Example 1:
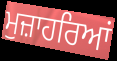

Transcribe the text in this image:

ਮੁਜ਼ਾਹਰਿਆਂ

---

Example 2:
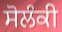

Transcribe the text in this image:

ਸੋਲੰਕੀ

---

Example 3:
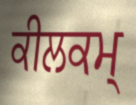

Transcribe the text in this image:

ਕੀਲਕਮ੍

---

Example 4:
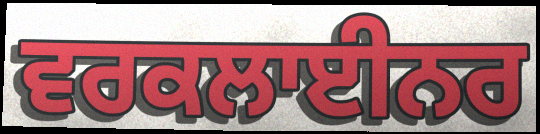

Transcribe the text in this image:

ਵਰਕਲਾਈਨਰ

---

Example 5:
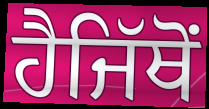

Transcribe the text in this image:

ਹੈਜਿੱਥੋਂ